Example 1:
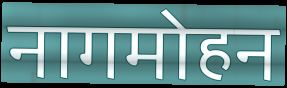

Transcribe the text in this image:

नागमोहन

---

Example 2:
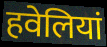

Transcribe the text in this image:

हवेलियां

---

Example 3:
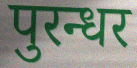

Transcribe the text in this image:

पुरन्धर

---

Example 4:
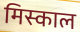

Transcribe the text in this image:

मिस्काल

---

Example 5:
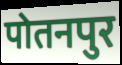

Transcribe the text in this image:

पोतनपुर